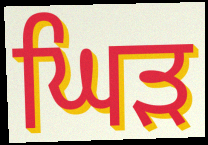
ਘਿੜ